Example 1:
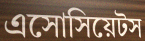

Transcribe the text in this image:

এসোসিয়েটস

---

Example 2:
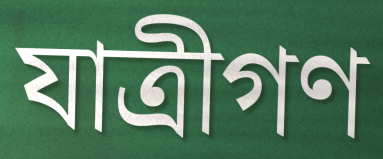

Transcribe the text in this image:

যাত্রীগণ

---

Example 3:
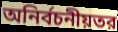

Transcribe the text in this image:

অনির্বচনীয়তর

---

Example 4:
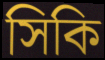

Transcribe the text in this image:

সিকি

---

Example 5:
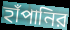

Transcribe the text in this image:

হাঁপানির